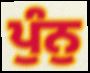
ਪੁੰਨੁ